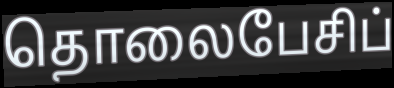
தொலைபேசிப்